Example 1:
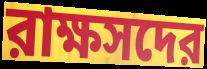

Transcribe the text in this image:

রাক্ষসদের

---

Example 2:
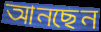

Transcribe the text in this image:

আনছেন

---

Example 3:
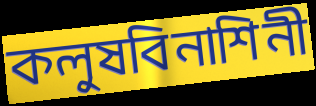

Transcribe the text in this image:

কলুষবিনাশিনী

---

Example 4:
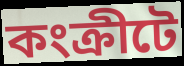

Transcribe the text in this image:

কংক্রীটে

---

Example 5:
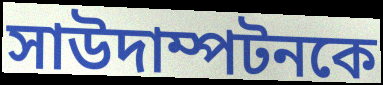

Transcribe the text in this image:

সাউদাম্পটনকে